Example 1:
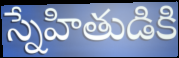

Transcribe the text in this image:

స్నేహితుడికి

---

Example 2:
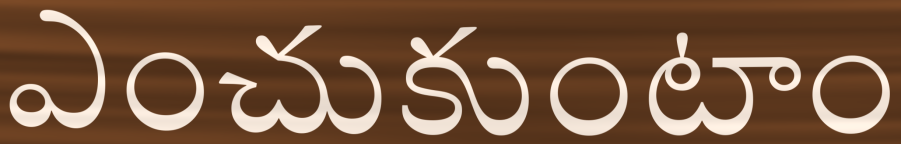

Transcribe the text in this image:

ఎంచుకుంటాం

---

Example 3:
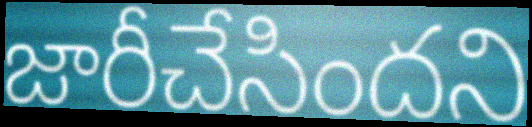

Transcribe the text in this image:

జారీచేసిందని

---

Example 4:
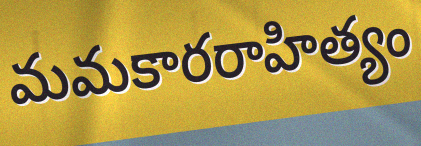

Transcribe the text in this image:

మమకారరాహిత్యం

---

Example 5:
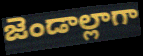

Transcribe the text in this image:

జెండాల్లాగా